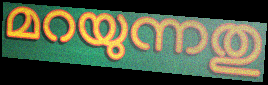
മറയുന്നതു